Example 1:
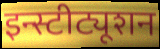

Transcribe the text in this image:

इन्स्टीट्यूशन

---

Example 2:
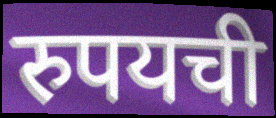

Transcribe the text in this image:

रुपयची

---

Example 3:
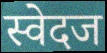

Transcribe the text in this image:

स्वेदज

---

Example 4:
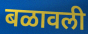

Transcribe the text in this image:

बळावली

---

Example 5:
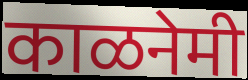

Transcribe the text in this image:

काळनेमी